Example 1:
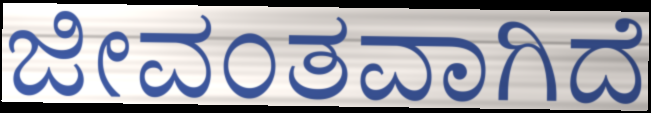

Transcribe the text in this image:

ಜೀವಂತವಾಗಿದೆ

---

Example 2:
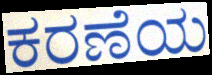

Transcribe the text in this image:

ಕರಣೆಯ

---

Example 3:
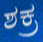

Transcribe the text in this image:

ಶಕ್ರ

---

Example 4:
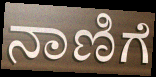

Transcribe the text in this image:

ನಾಣಿಗೆ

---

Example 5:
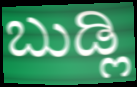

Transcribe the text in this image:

ಬುಡ್ಲಿ